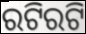
ରଟିରଟି